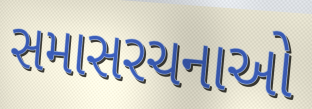
સમાસરચનાઓ